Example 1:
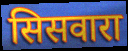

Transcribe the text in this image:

सिसवारा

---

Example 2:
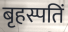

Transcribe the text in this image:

बृहस्पतिं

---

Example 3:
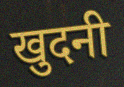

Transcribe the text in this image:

खुदनी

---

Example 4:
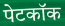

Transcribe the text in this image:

पेटकॉक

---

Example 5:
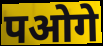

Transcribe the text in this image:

पओगे